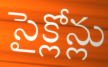
సైక్లోన్లు